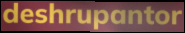
deshrupantor